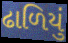
ઢાળિયું